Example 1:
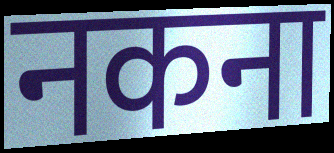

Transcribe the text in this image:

नकना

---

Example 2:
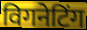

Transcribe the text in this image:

विगनेटिंग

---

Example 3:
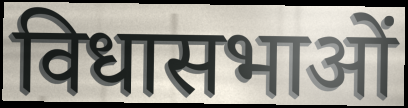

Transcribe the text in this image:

विधासभाओं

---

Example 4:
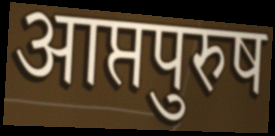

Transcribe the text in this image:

आप्तपुरुष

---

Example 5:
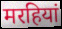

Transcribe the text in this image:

मरहियां